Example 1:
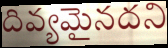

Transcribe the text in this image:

దివ్యమైనదని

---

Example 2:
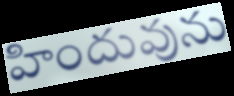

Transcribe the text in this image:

హిందువును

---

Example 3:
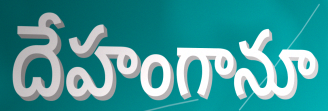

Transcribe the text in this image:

దేహంగానూ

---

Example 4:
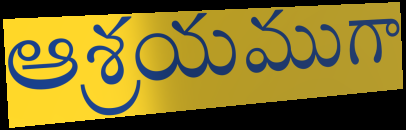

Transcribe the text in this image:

ఆశ్రయముగా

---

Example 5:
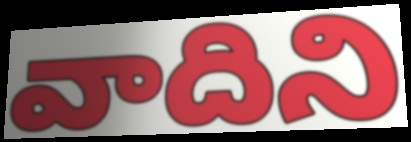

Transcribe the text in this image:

వాదిని